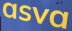
asva